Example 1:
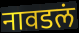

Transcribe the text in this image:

नावडलं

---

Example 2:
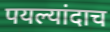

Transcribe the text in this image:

पयल्यांदाच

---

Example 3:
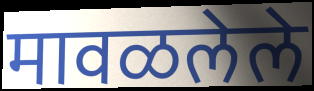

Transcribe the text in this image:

मावळलेले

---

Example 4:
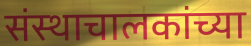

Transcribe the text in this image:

संस्थाचालकांच्या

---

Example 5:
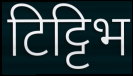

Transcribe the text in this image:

टिट्टिभ